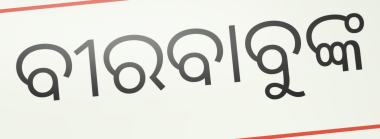
ବୀରବାବୁଙ୍କ